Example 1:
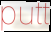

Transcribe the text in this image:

putt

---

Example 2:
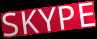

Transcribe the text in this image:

SKYPE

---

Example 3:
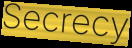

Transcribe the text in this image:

Secrecy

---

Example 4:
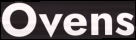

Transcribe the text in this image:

Ovens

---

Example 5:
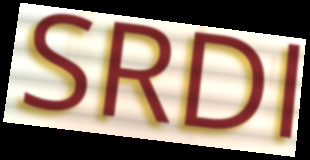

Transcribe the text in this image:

SRDI